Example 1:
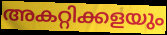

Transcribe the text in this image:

അകറ്റിക്കളയും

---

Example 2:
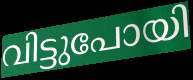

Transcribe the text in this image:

വിട്ടുപോയി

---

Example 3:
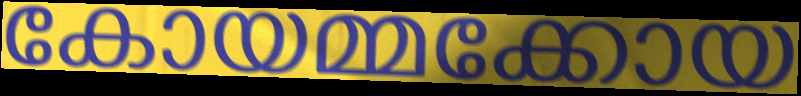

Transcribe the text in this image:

കോയമ്മക്കോയ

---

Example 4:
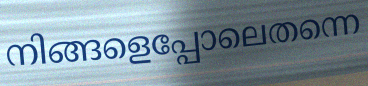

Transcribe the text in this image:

നിങ്ങളെപ്പോലെതന്നെ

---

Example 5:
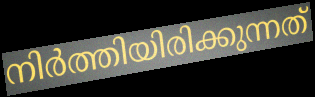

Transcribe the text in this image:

നിർത്തിയിരിക്കുന്നത്